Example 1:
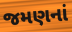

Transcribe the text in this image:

જમણનાં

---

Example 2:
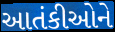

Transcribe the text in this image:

આતંકીઓને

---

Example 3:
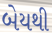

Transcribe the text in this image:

બેયથી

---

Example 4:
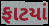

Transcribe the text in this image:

ફાટયાં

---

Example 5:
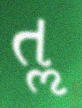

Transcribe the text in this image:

તૢ